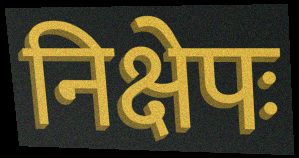
निक्षेपः